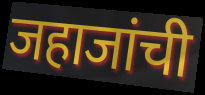
जहाजांची